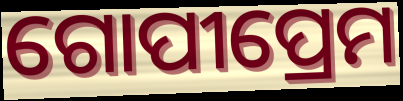
ଗୋପୀପ୍ରେମ